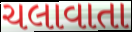
ચલાવાતા